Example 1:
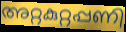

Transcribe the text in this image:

അറ്റകുറ്റപ്പണി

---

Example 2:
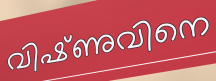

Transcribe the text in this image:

വിഷ്‌ണുവിനെ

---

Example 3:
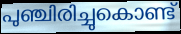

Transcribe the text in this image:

പുഞ്ചിരിച്ചുകൊണ്ട്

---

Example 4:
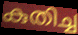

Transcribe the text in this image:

കുതിച്ച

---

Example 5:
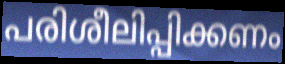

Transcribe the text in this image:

പരിശീലിപ്പിക്കണം